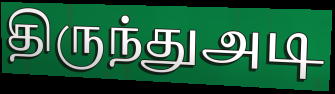
திருந்துஅடி